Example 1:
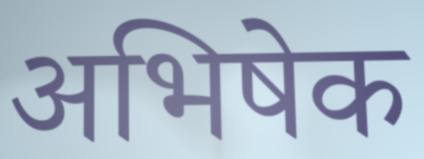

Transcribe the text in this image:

अभिषेक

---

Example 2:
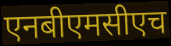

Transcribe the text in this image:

एनबीएमसीएच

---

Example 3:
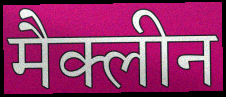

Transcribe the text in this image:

मैक्लीन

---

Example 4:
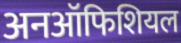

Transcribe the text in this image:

अनऑफिशियल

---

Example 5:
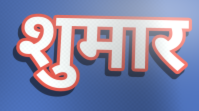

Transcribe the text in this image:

शुमार